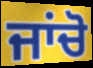
ਜਾਂਚੋ